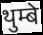
थुम्बे